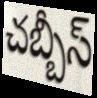
చబ్బీస్